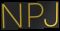
NPJ